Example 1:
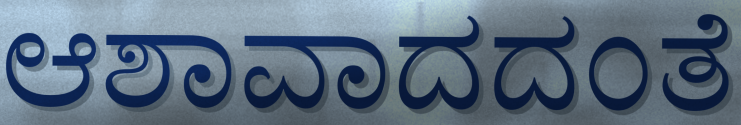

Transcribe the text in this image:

ಆಶಾವಾದದಂತೆ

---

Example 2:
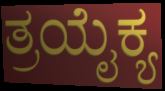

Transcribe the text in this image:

ತ್ರಯೈಕ್ಯ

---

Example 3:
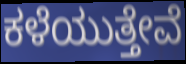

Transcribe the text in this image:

ಕಳೆಯುತ್ತೇವೆ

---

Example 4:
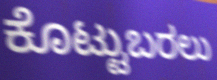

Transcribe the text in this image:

ಕೊಟ್ಟುಬರಲು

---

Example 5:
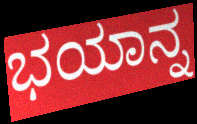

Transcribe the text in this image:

ಭಯಾನ್ನ